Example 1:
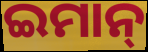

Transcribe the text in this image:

ଇମାନ୍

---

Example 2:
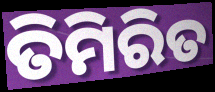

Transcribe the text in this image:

ତିମିରିତ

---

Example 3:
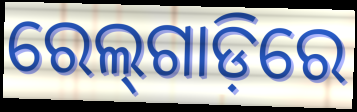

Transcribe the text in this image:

ରେଲ୍‌ଗାଡ଼ିରେ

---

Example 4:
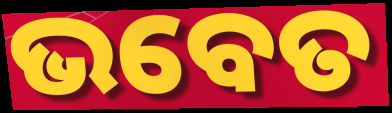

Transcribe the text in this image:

ଭବେତ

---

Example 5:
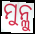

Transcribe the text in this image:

ମୁନ୍ଳୁ